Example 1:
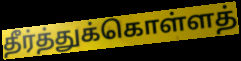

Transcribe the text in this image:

தீர்த்துக்கொள்ளத்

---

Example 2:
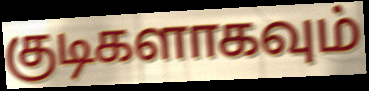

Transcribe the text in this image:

குடிகளாகவும்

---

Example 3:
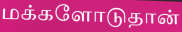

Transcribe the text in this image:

மக்களோடுதான்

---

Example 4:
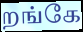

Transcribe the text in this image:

றங்கே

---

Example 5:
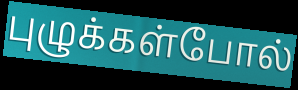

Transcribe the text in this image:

புழுக்கள்போல்